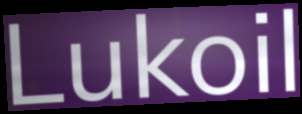
Lukoil